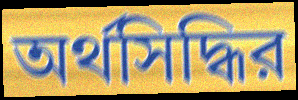
অর্থসিদ্ধির